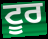
ਟੂਰ